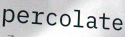
percolate